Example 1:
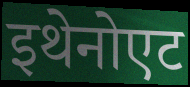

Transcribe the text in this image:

इथेनोएट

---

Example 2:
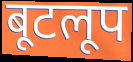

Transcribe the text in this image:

बूटलूप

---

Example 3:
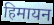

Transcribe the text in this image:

हिमायन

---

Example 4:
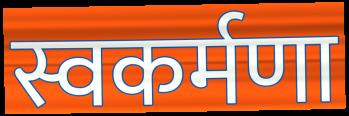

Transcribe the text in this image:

स्वकर्मणा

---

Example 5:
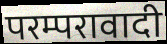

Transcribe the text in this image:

परम्परावादी